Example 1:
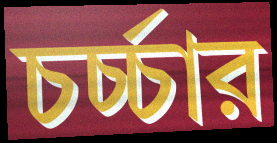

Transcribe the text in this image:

চর্চ্চার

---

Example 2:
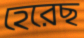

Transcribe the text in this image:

হেরেছ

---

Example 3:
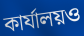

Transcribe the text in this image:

কার্যালয়ও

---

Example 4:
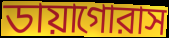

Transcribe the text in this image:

ডায়াগোরাস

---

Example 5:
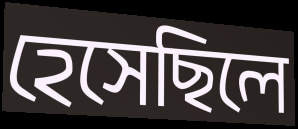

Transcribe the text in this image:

হেসেছিলে